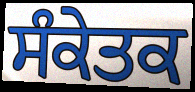
ਸੰਕੇਤਕ